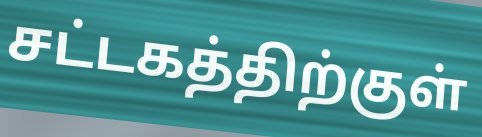
சட்டகத்திற்குள்